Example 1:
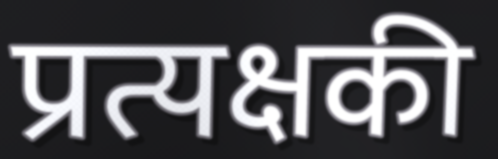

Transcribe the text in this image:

प्रत्यक्षकी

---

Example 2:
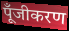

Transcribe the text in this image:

पूँजीकरण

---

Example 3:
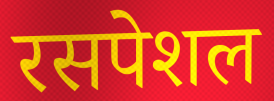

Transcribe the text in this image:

रसपेशल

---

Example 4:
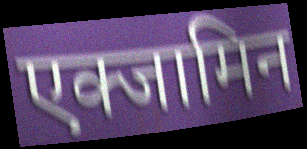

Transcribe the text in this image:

एक्जामिन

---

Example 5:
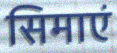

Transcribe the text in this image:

सिमाएं